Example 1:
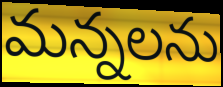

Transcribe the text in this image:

మన్నలను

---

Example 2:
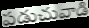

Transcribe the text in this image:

పడుచువాడి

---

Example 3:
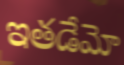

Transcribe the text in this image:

ఇతడేమో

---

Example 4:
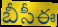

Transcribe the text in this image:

బీసీఈ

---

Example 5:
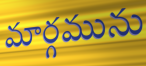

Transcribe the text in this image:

మార్గమును